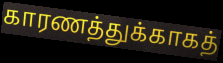
காரணத்துக்காகத்